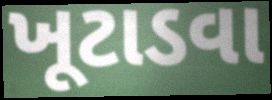
ખૂટાડવા